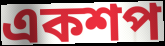
একশপ